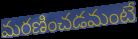
మరణించడమంటే